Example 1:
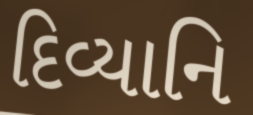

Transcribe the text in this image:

દિવ્યાનિ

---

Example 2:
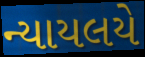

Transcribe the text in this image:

ન્યાયલયે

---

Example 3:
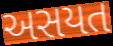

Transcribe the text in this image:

અસયત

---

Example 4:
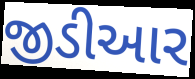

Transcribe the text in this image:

જીડીઆર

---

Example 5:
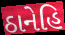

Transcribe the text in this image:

ઠાનેહિ